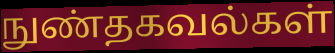
நுண்தகவல்கள்